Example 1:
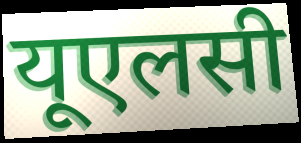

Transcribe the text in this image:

यूएलसी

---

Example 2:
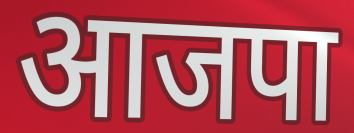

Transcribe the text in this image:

आजपा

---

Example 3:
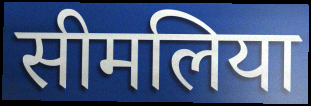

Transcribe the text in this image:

सीमलिया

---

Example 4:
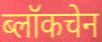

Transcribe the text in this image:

ब्लॉकचेन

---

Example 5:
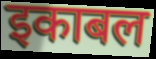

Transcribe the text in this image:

इकाबल